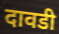
दावडी